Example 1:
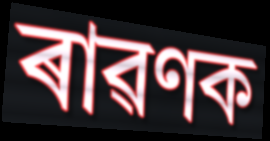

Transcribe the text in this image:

ৰাৱণক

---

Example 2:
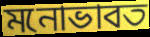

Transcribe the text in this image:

মনোভাবত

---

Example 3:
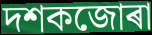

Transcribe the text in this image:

দশকজোৰা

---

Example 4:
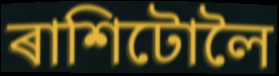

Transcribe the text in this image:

ৰাশিটোলৈ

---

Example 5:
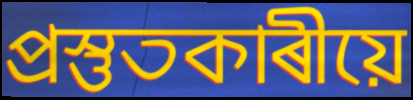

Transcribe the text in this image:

প্ৰস্তুতকাৰীয়ে